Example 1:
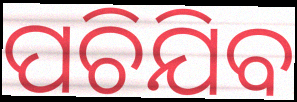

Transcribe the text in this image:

ପଚିଯିବ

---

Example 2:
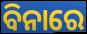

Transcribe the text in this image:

ବିନାରେ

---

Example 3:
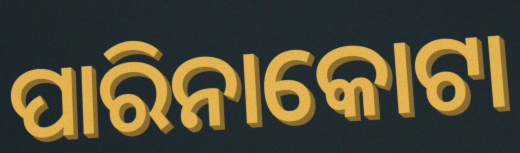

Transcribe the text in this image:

ପାରିନାକୋଟା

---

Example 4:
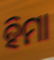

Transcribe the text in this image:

ହିମା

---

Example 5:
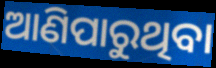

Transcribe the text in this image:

ଆଣିପାରୁଥିବା